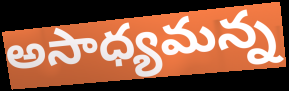
అసాధ్యమన్న